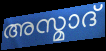
അസ്മാദ്